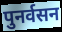
पुनर्वसन